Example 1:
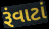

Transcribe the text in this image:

રૂંવાટાં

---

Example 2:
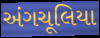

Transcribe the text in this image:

અંગચૂલિયા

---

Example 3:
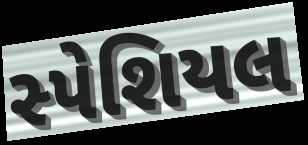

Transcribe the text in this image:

સ્પેશિયલ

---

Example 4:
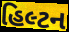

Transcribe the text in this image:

હિલ્ટન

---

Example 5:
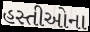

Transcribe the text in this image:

હસ્તીઓના